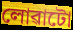
লোৱাটো